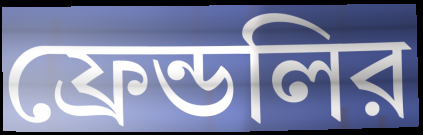
ফ্রেন্ডলির